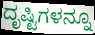
ದೃಷ್ಟಿಗಳನ್ನೂ